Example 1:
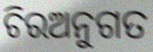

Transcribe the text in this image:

ଚିରଅନୁଗତ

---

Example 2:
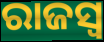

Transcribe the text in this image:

ରାଜସ୍ୱ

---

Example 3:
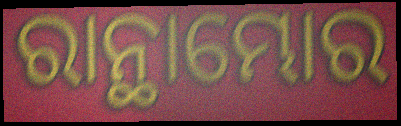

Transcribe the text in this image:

ରାନ୍ଥାମ୍ଭୋର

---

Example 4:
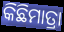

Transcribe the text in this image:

କିଛିମାତ୍ରା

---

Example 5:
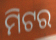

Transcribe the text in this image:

ମିଟର